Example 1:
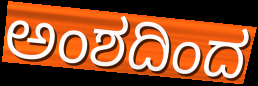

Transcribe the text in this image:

ಅಂಶದಿಂದ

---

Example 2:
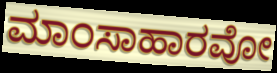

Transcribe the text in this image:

ಮಾಂಸಾಹಾರವೋ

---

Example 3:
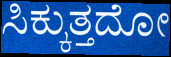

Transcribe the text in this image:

ಸಿಕ್ಕುತ್ತದೋ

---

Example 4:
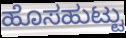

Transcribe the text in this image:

ಹೊಸಹುಟ್ಟು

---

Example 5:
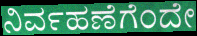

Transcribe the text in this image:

ನಿರ್ವಹಣೆಗೆಂದೇ